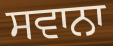
ਸਵਾਨਾ